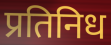
प्रतिनिध